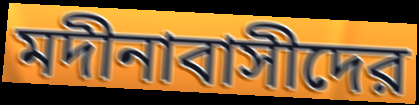
মদীনাবাসীদের